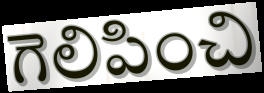
గెలిపించి